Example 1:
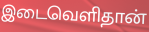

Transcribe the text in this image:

இடைவெளிதான்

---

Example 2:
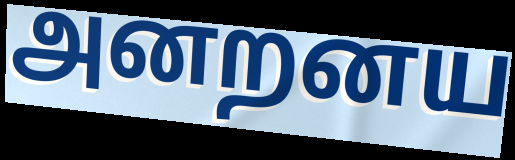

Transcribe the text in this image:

அனறனய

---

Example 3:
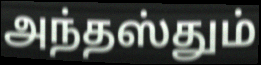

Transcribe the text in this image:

அந்தஸ்தும்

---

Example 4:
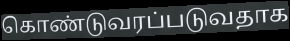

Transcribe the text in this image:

கொண்டுவரப்படுவதாக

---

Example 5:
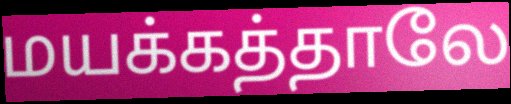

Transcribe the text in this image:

மயக்கத்தாலே